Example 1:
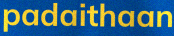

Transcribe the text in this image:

padaithaan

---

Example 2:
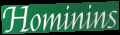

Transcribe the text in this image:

Hominins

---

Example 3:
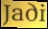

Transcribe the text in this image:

Jadi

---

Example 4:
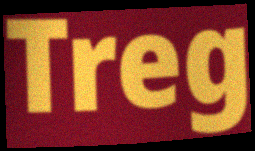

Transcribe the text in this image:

Treg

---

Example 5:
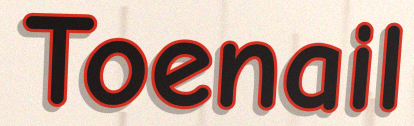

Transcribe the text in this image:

Toenail